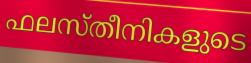
ഫലസ്തീനികളുടെ